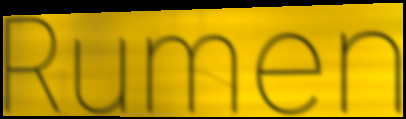
Rumen